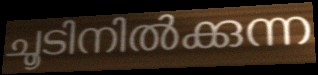
ചൂടിനിൽക്കുന്ന